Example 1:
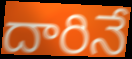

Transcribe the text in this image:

దారినే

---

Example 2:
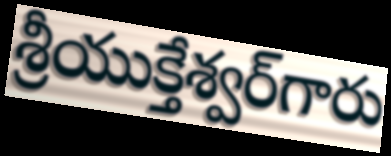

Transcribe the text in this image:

శ్రీయుక్తేశ్వర్‌గారు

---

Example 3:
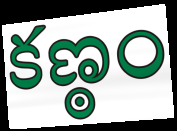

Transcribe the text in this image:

కణ్ఠం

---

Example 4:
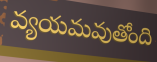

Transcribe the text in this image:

వ్యయమవుతోంది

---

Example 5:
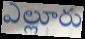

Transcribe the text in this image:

ఎల్లూరు